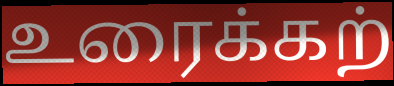
உரைக்கற்